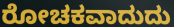
ರೋಚಕವಾದುದು